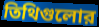
তিথিগুলোর